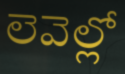
లెవెల్లో